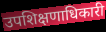
उपशिक्षणाधिकारी